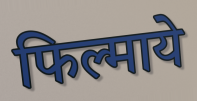
फिल्माये